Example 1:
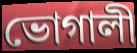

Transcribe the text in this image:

ভোগালী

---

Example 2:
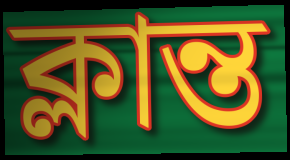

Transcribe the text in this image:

ক্লান্ত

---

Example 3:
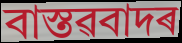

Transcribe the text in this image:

বাস্তৱবাদৰ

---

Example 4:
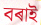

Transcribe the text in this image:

বৰাই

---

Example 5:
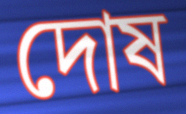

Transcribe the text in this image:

দোষ